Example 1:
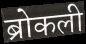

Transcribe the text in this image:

ब्रोकली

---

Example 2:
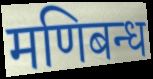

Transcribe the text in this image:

मणिबन्ध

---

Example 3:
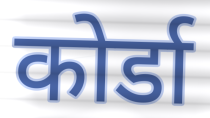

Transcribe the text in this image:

कोर्डा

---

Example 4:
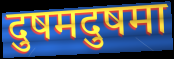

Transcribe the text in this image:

दुषमदुषमा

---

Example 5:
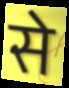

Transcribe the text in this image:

से